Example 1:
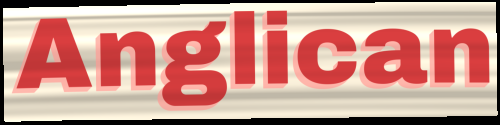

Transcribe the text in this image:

Anglican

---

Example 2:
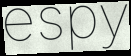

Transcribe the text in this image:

espy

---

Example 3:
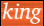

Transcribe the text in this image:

king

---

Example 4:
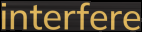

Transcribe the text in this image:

interfere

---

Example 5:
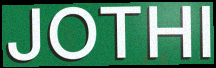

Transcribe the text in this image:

JOTHI